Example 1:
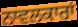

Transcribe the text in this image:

ਨਾਵਲਕਾਰਾਂ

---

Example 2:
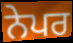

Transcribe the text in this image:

ਨੇਪਰ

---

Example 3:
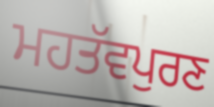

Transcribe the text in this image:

ਮਹਤੱਵਪੁਰਣ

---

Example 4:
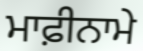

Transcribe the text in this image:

ਮਾਫ਼ੀਨਾਮੇ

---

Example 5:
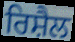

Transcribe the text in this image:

ਰਿਸ਼ੈਲ